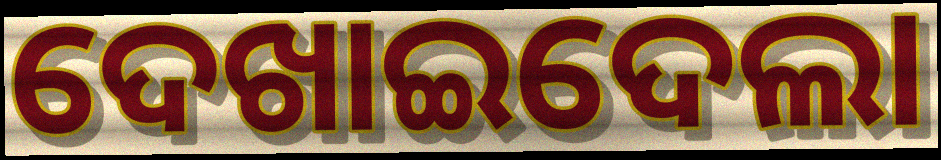
ଦେଖାଇଦେଲା